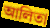
আলিতা